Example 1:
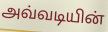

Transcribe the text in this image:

அவ்வடியின்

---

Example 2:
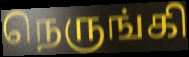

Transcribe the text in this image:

நெருங்கி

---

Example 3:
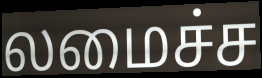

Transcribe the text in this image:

லமைச்ச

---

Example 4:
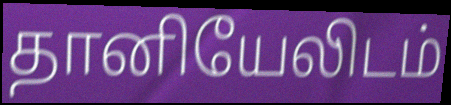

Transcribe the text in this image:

தானியேலிடம்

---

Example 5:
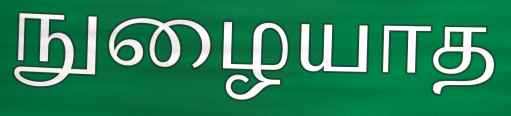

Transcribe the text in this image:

நுழையாத